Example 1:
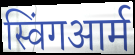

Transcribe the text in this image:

स्विंगआर्म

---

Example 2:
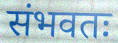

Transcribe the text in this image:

संभवतः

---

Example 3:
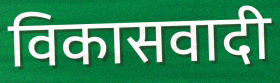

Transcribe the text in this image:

विकासवादी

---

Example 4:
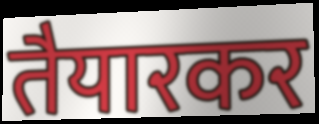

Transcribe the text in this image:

तैयारकर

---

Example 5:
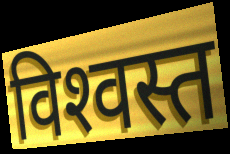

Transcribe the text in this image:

विश्‍वस्त